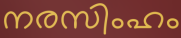
നരസിംഹം